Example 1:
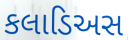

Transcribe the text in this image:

કલાડિઅસ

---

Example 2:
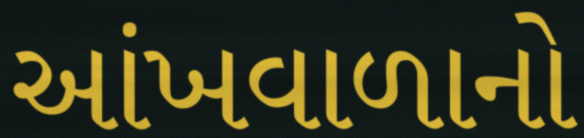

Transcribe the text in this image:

આંખવાળાનો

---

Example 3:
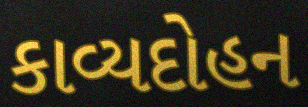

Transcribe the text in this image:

કાવ્યદોહન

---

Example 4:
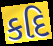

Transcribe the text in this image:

કદિ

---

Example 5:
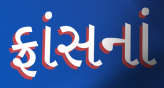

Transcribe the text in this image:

ફ્રાંસનાં